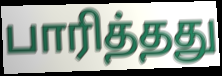
பாரித்தது